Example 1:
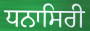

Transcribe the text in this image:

ਧਨਾਸਿਰੀ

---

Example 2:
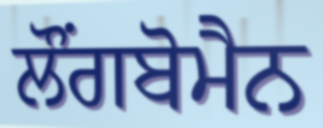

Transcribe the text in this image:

ਲੌਂਗਬੋਮੈਨ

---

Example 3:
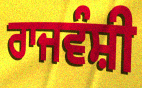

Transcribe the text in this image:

ਰਾਜਵੰਸ਼ੀ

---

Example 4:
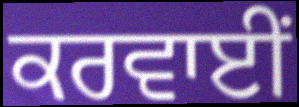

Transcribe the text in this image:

ਕਰਵਾਈਂ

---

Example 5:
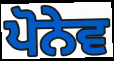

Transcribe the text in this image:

ਪੋਨੇਵ